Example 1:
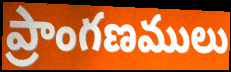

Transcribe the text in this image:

ప్రాంగణములు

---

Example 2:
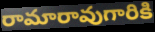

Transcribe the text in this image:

రామారావుగారికి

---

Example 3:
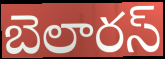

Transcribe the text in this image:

బెలారస్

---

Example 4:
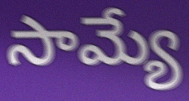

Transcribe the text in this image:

సామ్యే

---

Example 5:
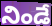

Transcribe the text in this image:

నిండే